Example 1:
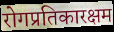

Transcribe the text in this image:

रोगप्रतिकारक्षम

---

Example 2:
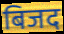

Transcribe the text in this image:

बिजद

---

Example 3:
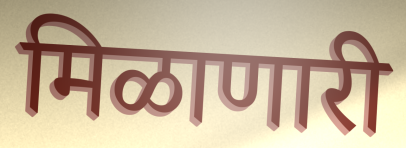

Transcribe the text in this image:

मिळाणारी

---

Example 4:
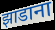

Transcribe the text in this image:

झाडाना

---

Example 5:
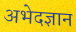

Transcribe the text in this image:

अभेदज्ञान